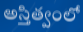
అస్తిత్వంలో